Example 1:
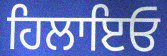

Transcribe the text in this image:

ਹਿਲਾਇਓ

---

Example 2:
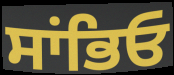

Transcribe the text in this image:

ਸਾਂਭਿਓ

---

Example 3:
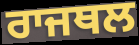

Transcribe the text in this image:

ਰਾਜਥਲ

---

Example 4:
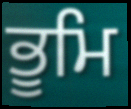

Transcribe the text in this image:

ਭੂਮਿ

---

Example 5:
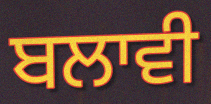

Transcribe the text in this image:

ਬਲਾਵੀ